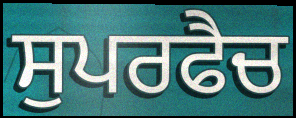
ਸੁਪਰਫੈਚ